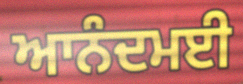
ਆਨੰਦਮਈ